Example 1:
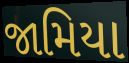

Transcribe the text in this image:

જામિયા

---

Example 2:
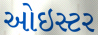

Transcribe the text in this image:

ઓઇસ્ટર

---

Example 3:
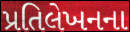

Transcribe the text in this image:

પ્રતિલેખનના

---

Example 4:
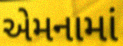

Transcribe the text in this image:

એમનામાં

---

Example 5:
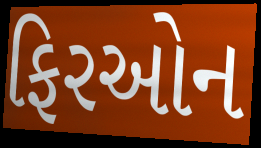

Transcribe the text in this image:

ફિરઓન